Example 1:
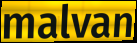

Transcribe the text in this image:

malvan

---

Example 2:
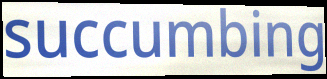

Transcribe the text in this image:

succumbing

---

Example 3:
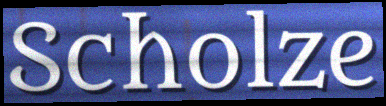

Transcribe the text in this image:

Scholze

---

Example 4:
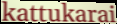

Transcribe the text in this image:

kattukarai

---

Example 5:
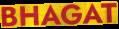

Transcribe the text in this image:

BHAGAT